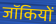
जॉकियों